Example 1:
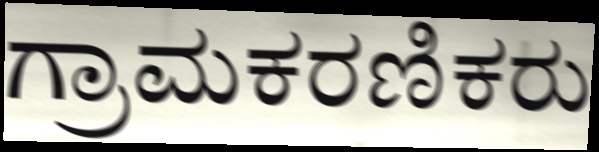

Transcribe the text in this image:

ಗ್ರಾಮಕರಣಿಕರು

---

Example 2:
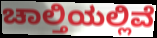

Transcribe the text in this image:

ಚಾಲ್ತಿಯಲ್ಲಿವೆ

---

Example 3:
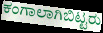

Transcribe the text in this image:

ಕಂಗಾಲಾಗಿಬಿಟ್ಟರು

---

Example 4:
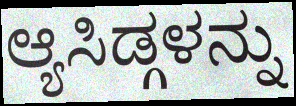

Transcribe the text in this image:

ಆ್ಯಸಿಡ್ಗಳನ್ನು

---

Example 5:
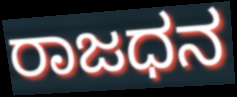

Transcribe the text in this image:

ರಾಜಧನ